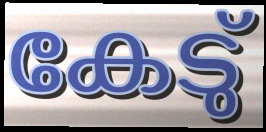
കേടു്